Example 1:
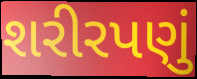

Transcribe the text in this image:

શરીરપણું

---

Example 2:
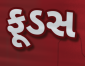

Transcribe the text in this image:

ફૂડસ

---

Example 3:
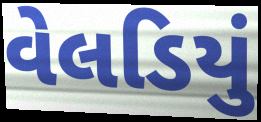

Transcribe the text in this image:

વેલડિયું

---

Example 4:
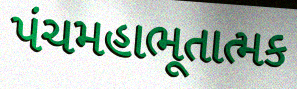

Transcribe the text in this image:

પંચમહાભૂતાત્મક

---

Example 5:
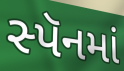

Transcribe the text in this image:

સ્પૅનમાં